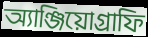
অ্যাঞ্জিয়োগ্রাফি